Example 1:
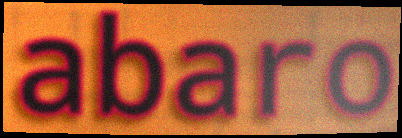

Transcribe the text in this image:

abaro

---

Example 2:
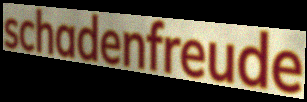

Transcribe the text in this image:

schadenfreude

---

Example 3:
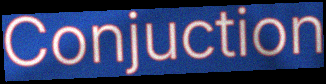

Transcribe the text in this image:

Conjuction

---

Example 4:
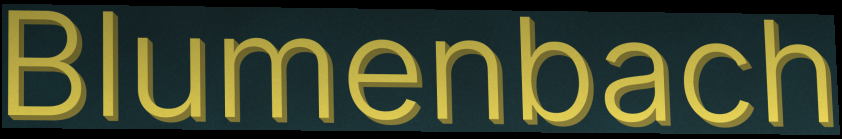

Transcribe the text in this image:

Blumenbach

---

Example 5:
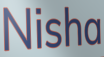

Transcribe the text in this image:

Nisha